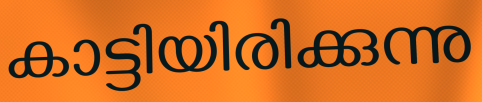
കാട്ടിയിരിക്കുന്നു